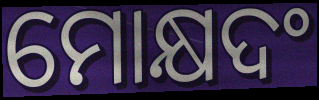
ମୋକ୍ଷଦଂ